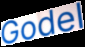
Godel